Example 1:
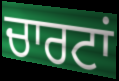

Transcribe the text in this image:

ਚਾਰਟਾਂ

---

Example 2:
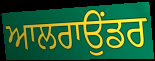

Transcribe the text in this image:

ਆਲਰਾਉਂਡਰ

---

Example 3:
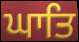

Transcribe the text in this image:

ਘਾਤਿ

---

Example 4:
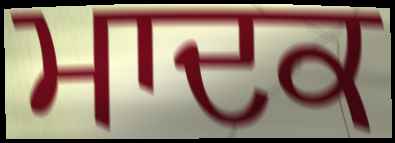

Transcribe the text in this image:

ਮਾਦਕ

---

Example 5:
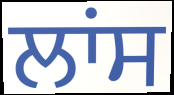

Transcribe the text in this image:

ਲਾਂਸ